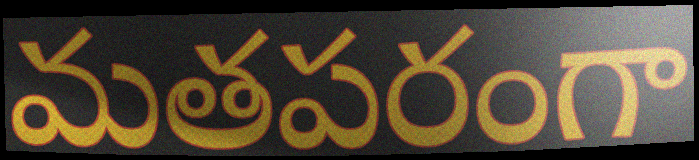
మతపరంగా